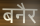
बनैर